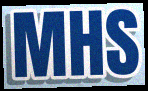
MHS